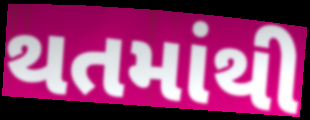
થતમાંથી